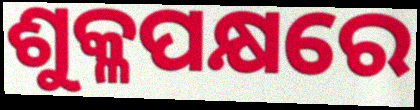
ଶୁକ୍ଳପକ୍ଷରେ